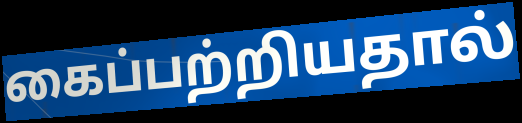
கைப்பற்றியதால்